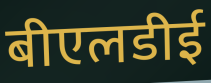
बीएलडीई